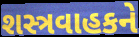
શસ્ત્રવાહકને